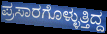
ಪ್ರಸಾರಗೊಳ್ಳುತ್ತಿದ್ದ